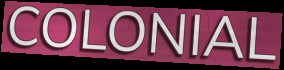
COLONIAL